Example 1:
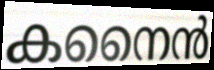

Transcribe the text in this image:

കനൈൻ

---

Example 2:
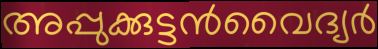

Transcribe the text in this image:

അപ്പുക്കുട്ടൻവൈദ്യർ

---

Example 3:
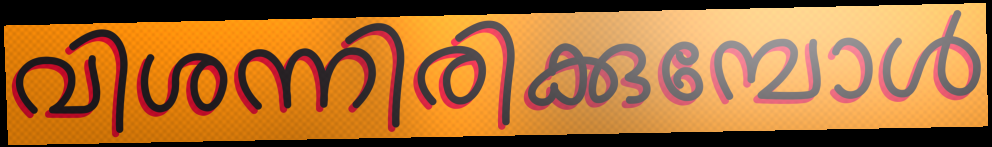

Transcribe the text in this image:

വിശന്നിരിക്കുമ്പോൾ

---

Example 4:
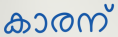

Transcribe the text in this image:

കാരന്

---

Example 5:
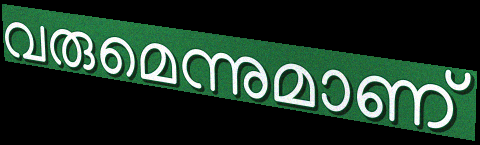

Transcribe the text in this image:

വരുമെന്നുമാണ്